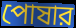
পোষার